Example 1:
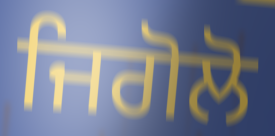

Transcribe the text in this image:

ਜਿਗੋਲੋ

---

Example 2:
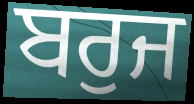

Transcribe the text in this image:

ਬਰੁਜ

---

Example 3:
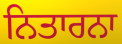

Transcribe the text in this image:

ਨਿਤਾਰਨਾ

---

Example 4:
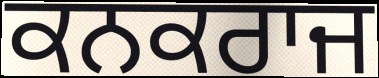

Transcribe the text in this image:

ਕਨਕਰਾਜ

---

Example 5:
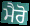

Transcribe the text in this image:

ਮੈਰੋ